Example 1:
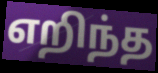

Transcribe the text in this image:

எறிந்த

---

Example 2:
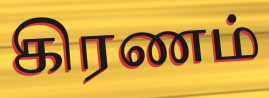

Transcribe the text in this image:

கிரணம்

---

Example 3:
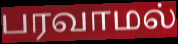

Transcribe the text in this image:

பரவாமல்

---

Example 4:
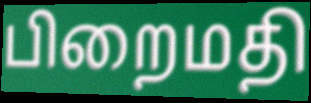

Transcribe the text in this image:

பிறைமதி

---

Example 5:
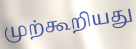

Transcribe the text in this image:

முற்கூறியது